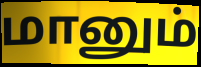
மானும்